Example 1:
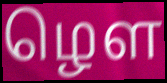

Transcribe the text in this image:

ழௌ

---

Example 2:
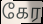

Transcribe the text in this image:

கேர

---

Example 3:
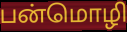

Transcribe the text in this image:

பன்மொழி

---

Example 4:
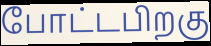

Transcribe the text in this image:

போட்டபிறகு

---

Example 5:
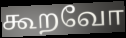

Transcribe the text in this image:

கூறவோ